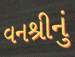
વનશ્રીનું